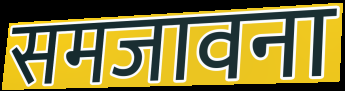
समजावना